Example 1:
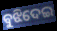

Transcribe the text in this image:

ବୁଝିଦେଇ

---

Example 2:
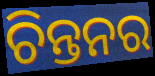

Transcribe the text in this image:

ଚିନ୍ତନର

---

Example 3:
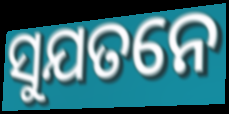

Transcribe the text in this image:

ସୁଯତନେ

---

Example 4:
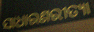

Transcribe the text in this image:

ସାଧାରଣରୀତ୍ୟା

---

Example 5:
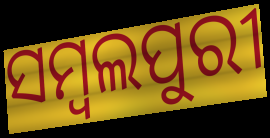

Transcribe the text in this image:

ସମ୍ବଲପୁରୀ